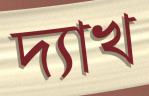
দ্যাখ